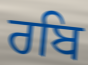
ਰਬਿ